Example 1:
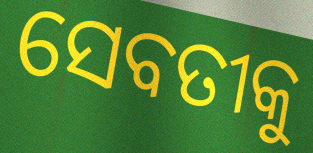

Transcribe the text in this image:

ସେବତୀକୁ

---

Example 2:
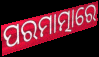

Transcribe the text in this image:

ପରମାତ୍ମାରେ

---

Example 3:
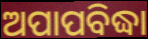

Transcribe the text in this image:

ଅପାପବିଦ୍ଧା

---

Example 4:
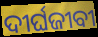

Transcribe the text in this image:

ଦୀର୍ଘଜୀବୀ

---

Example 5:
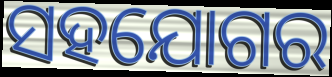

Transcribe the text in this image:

ସହଯୋଗର